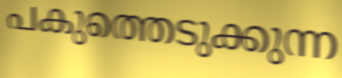
പകുത്തെടുക്കുന്ന